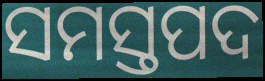
ସମସ୍ତପଦ